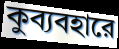
কুব্যবহারে